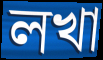
লখা